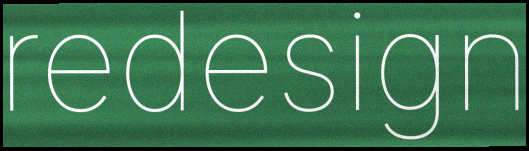
redesign